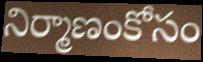
నిర్మాణంకోసం